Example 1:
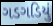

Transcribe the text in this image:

ગડગડિયું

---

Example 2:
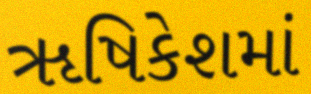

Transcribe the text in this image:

ૠષિકેશમાં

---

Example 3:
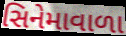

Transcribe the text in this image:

સિનેમાવાળા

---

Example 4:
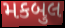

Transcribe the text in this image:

મકબુલ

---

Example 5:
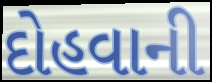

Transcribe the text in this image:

દોહવાની